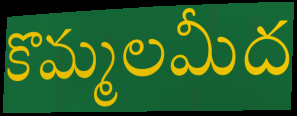
కొమ్మలమీద